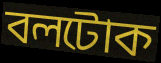
বলটোক